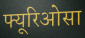
फ्यूरिओसा